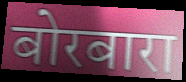
बोरबारा